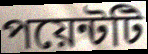
পয়েন্টটি